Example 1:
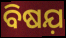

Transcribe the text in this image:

ବିଷଯ଼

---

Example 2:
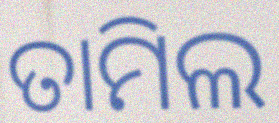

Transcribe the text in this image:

ତାମିଲ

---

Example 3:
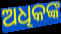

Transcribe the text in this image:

ଅଧିକଙ୍କ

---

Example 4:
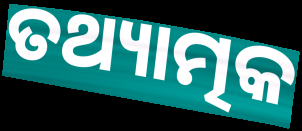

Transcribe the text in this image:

ତଥ୍ୟାତ୍ମକ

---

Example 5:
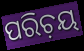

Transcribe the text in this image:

ପରିଚ଼ୟ